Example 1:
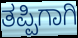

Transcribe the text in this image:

ತಪ್ಪಿಗಾಗಿ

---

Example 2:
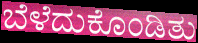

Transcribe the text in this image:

ಬೆಳೆದುಕೊಂಡಿತು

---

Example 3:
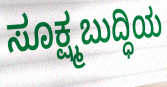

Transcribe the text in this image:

ಸೂಕ್ಷ್ಮಬುದ್ಧಿಯ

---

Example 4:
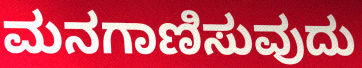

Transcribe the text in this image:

ಮನಗಾಣಿಸುವುದು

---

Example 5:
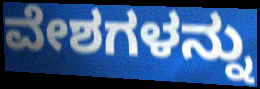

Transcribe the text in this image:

ವೇಶಗಳನ್ನು